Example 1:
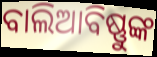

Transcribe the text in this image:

ବାଲିଆବିଷ୍ଣୁଙ୍କ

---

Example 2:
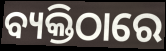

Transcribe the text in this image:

ବ୍ୟକ୍ତିଠାରେ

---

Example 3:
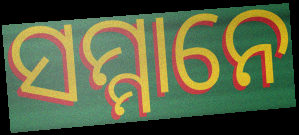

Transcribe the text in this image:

ସମ୍ମାନେ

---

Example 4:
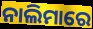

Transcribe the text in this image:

ନାଲିମାରେ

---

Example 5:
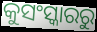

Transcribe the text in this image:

କୁସଂସ୍କାରରୁ